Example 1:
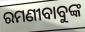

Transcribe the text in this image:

ରମଣୀବାବୁଙ୍କ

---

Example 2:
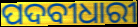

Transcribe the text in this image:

ପଦବୀଧାରୀ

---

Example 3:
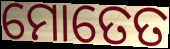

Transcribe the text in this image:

ମୋତେତ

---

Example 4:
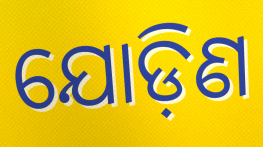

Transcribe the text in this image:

ଯୋଡ଼ିଣ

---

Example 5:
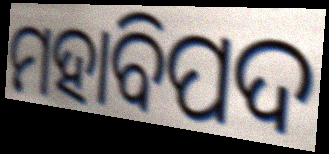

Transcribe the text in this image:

ମହାବିପଦ